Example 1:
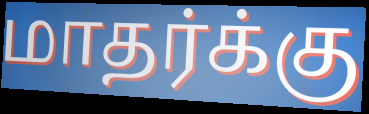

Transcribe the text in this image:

மாதர்க்கு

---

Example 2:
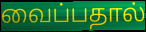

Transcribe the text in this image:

வைப்பதால்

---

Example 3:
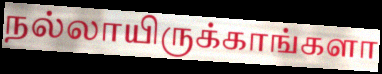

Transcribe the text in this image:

நல்லாயிருக்காங்களா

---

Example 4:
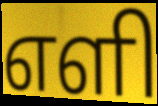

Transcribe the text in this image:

எளி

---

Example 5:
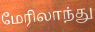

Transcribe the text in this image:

மேரிலாந்து